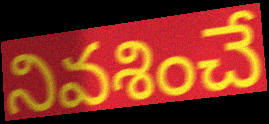
నివశించే